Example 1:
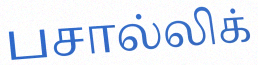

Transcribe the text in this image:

பசால்லிக்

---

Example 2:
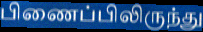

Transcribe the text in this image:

பிணைப்பிலிருந்து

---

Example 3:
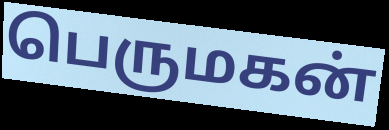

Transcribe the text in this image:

பெருமகன்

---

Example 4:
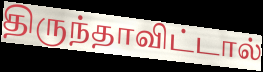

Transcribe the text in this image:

திருந்தாவிட்டால்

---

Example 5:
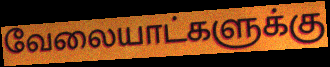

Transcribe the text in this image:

வேலையாட்களுக்கு